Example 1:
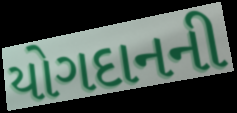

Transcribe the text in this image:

યોગદાનની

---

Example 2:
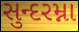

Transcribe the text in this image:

સુન્દરમ્ના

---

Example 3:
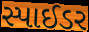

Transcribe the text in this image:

સ્પાઈડર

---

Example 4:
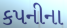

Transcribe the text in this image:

કપનીના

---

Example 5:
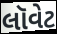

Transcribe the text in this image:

લૉવેટ